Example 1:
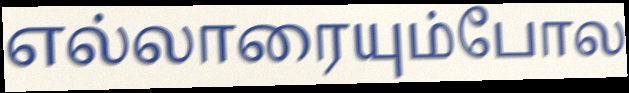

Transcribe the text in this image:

எல்லாரையும்போல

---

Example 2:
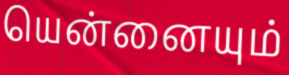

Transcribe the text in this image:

யென்னையும்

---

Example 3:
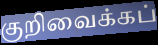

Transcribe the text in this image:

குறிவைக்கப்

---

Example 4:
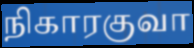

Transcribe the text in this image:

நிகாரகுவா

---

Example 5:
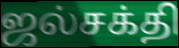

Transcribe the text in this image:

ஜல்சக்தி